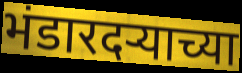
भंडारदर्‍याच्या